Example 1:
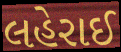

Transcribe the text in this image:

લહેરાઈ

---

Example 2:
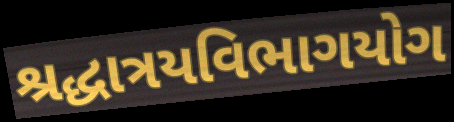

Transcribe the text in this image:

શ્રદ્ધાત્રયવિભાગયોગ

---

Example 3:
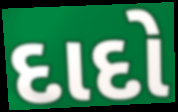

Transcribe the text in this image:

દાદો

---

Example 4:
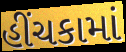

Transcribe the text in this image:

હીંચકામાં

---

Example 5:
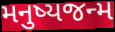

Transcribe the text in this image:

મનુષ્યજન્મ